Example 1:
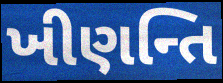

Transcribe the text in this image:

ખીણન્તિ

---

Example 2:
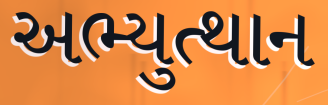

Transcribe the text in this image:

અભ્યુત્થાન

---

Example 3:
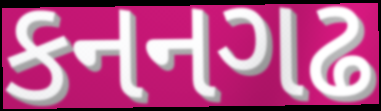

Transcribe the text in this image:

કનનગઢ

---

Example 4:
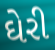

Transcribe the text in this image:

ઘેરી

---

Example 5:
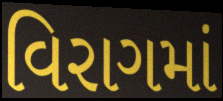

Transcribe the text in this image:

વિરાગમાં